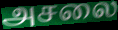
அசலை